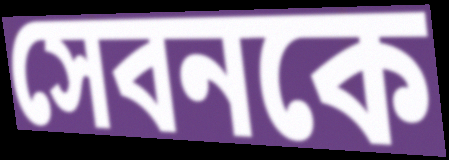
সেবনকে